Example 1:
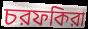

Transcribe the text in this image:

চরফকিরা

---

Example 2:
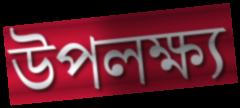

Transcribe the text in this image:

উপলক্ষ্য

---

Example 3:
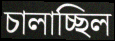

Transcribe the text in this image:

চালাচ্ছিল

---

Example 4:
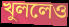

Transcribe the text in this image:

খুললেও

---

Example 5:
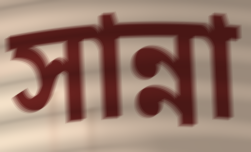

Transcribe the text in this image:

সান্না